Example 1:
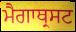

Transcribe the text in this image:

ਮੈਗਾਥ੍ਰਸਟ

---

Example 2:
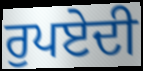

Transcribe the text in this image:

ਰੁਪਏਦੀ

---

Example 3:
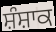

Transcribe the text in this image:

ਸ਼ੰਸ਼ਾਕ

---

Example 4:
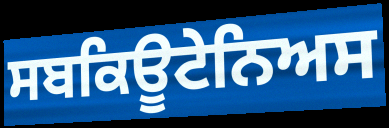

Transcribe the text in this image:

ਸਬਕਿਊਟੇਨਿਅਸ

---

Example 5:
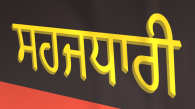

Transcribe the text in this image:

ਸਹਜਧਾਰੀ